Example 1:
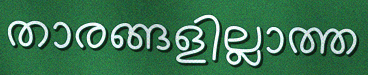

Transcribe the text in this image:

താരങ്ങളില്ലാത്ത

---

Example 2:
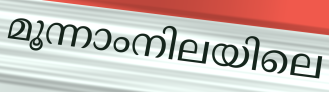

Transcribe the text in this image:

മൂന്നാംനിലയിലെ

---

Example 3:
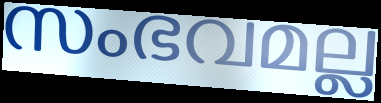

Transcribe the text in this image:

സംഭവമല്ല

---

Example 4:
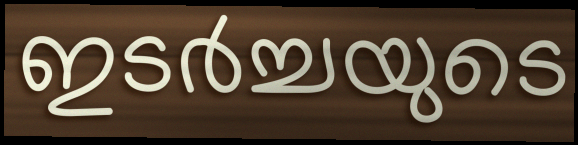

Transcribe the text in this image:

ഇടർച്ചയുടെ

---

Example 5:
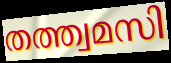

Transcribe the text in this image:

തത്ത്വമസി